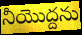
నీయొద్దను